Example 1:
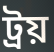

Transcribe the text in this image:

ট্রয়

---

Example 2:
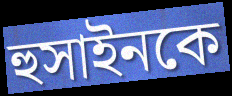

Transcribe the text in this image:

হুসাইনকে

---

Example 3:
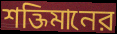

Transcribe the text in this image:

শক্তিমানের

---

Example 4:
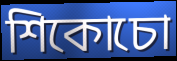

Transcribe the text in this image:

শিকোচো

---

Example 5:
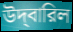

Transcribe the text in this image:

উদ্‌বারিল